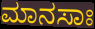
ಮಾನಸಾಃ